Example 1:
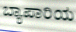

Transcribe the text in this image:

ಬ್ಯಾಪಾರಿಯ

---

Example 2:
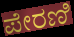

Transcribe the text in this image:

ಪೇರಣಿ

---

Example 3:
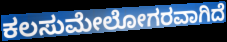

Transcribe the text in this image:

ಕಲಸುಮೇಲೋಗರವಾಗಿದೆ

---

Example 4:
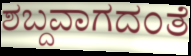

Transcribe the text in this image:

ಶಬ್ದವಾಗದಂತೆ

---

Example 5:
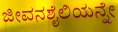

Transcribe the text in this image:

ಜೀವನಶೈಲಿಯನ್ನೇ